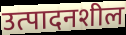
उत्पादनशील